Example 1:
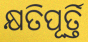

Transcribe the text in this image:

କ୍ଷତିପୂର୍ତ୍ତି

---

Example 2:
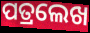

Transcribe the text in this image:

ପତ୍ରଲେଖ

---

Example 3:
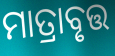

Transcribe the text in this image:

ମାତ୍ରାବୃତ୍ତ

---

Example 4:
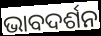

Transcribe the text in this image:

ଭାବଦର୍ଶନ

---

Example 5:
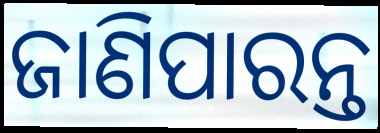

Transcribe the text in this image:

ଜାଣିପାରନ୍ତ